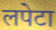
लपेटा